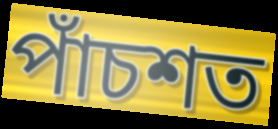
পাঁচশত